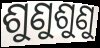
ଶୁଣୁଶୁଣୁ